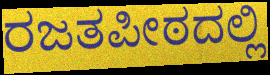
ರಜತಪೀಠದಲ್ಲಿ